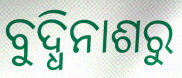
ବୁଦ୍ଧିନାଶରୁ